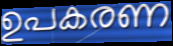
ഉപകരണ